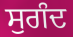
ਸੁਗੰਦ